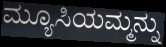
ಮ್ಯೂಸಿಯಮ್ಮನ್ನು